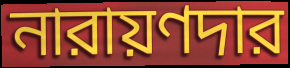
নারায়ণদার